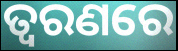
ତ୍ଵରଣରେ